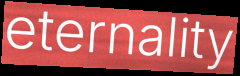
eternality